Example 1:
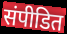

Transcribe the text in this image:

संपीडित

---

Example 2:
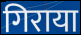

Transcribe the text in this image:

गिराया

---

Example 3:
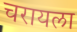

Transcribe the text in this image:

चरायला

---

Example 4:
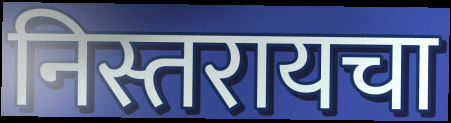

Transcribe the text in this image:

निस्तरायचा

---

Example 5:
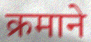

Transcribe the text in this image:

क्रमाने